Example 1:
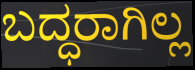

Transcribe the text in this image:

ಬದ್ಧರಾಗಿಲ್ಲ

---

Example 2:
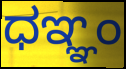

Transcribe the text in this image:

ಧಞ್ಞಂ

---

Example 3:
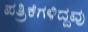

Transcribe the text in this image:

ಪತ್ರಿಕೆಗಳಿದ್ದವು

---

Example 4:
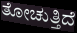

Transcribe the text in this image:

ತೋಚುತ್ತಿದೆ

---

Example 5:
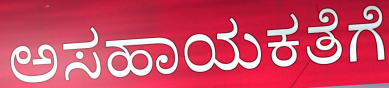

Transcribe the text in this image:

ಅಸಹಾಯಕತೆಗೆ